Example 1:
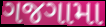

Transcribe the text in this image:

ગજગામા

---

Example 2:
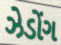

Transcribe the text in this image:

ઝેડોંગ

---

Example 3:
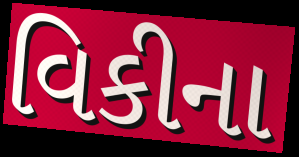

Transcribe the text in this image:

વિકીના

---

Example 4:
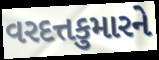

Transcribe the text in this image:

વરદત્તકુમારને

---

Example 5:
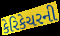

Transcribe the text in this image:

કેરિકેચરની